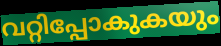
വറ്റിപ്പോകുകയും